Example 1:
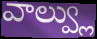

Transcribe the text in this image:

వాల్వ్లు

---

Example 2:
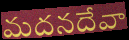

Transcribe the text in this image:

మదనదేవా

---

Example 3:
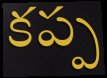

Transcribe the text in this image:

కప్ప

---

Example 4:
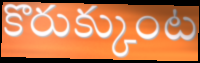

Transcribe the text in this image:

కొరుక్కుంట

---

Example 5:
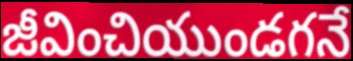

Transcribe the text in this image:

జీవించియుండగనే